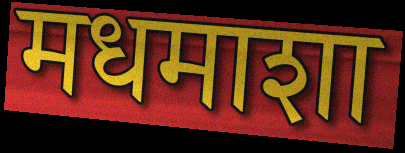
मधमाशा